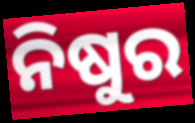
ନିଷୁର